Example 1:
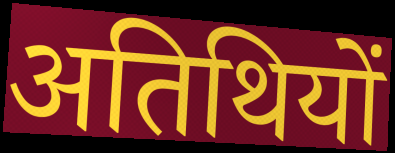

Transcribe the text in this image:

अतिथियों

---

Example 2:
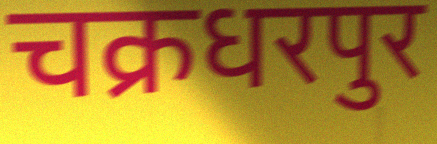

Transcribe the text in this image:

चक्रधरपुर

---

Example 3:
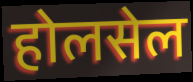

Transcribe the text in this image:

होलसेल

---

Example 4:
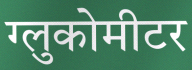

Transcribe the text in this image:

ग्लुकोमीटर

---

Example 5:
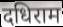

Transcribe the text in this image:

दधिराम